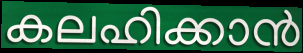
കലഹിക്കാൻ